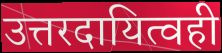
उत्तरदायित्वही